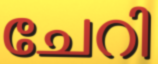
ചേറി